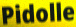
Pidolle